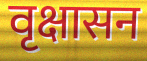
वृक्षासन